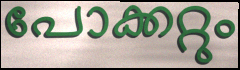
പോക്കറ്റും